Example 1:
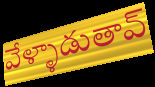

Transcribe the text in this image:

వేళ్ళాడుతావ్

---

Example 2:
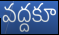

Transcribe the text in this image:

వద్దకూ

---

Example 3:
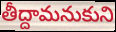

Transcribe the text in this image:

తీద్దామనుకుని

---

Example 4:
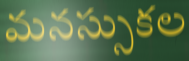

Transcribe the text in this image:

మనస్సుకల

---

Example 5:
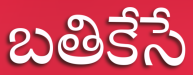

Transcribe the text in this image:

బతికేసే